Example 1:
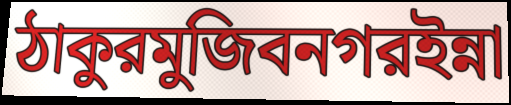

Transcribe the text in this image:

ঠাকুরমুজিবনগরইন্না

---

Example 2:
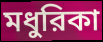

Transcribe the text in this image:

মধুরিকা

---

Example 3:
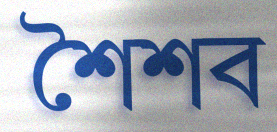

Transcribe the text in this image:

শৈশব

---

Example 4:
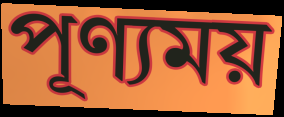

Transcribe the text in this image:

পূণ্যময়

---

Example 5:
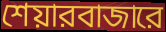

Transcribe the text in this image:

শেয়ারবাজারে